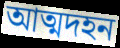
আত্মদহন